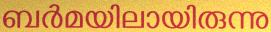
ബർമയിലായിരുന്നു